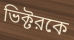
ভিক্টরকে